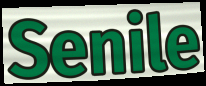
Senile